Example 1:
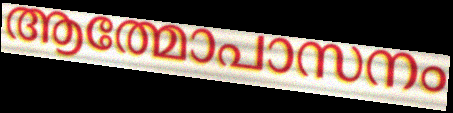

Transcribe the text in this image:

ആത്മോപാസനം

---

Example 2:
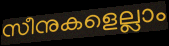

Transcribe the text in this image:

സീനുകളെല്ലാം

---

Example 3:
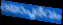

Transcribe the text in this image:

ദയാപൂർവം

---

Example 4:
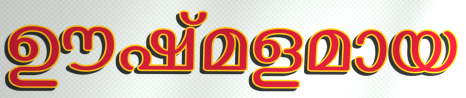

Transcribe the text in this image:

ഊഷ്‌മളമായ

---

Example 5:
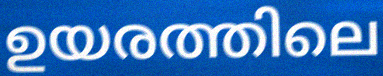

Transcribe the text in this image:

ഉയരത്തിലെ